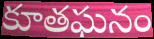
కూతఘనం